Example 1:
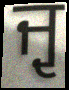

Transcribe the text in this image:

ਜ੍ਦ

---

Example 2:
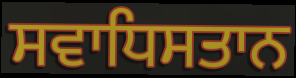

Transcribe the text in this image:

ਸਵਾਧਿਸਤਾਨ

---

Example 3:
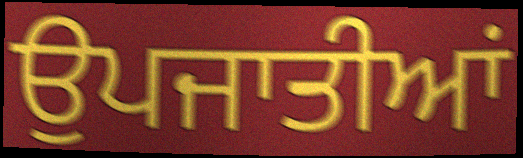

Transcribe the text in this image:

ਉਪਜਾਤੀਆਂ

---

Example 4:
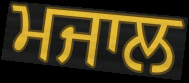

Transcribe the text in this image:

ਮਜਾਲ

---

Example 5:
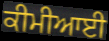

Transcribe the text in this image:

ਕੀਮੀਆਈ